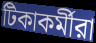
টিকাকর্মীরা